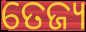
ତେଜ୍ୟ